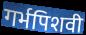
गर्भपिशवी